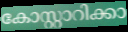
കോസ്റ്റാറിക്കാ